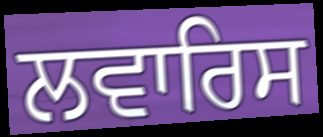
ਲਵਾਰਿਸ